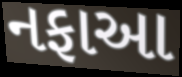
નફાઆ